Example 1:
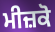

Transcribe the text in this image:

ਮੀਜ਼ਕੋ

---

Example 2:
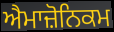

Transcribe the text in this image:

ਐਮਾਜ਼ੋਨਿਕਮ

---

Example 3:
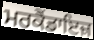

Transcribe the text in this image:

ਮਰਕੈਂਡਾਇਜ਼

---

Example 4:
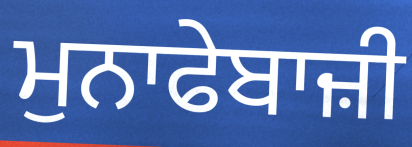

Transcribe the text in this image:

ਮੁਨਾਫੇਬਾਜ਼ੀ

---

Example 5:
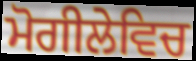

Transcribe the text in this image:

ਮੋਗੀਲੇਵਿਚ